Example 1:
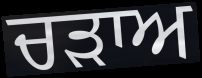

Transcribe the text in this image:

ਚੜਾਅ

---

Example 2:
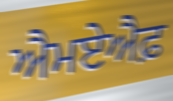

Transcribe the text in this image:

ਐਮਏਐਫ਼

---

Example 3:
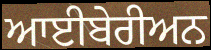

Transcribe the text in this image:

ਆਈਬੇਰੀਅਨ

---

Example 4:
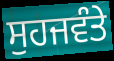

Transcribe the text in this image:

ਸੁਹਜਵੰਤੇ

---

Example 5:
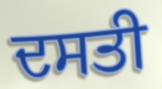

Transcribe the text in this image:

ਦਸਤੀ